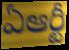
ఏఆర్టీ